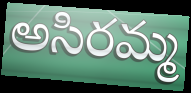
అసిరమ్మ